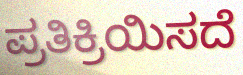
ಪ್ರತಿಕ್ರಿಯಿಸದೆ